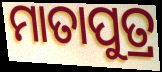
ମାତାପୁତ୍ର